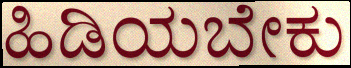
ಹಿಡಿಯಬೇಕು